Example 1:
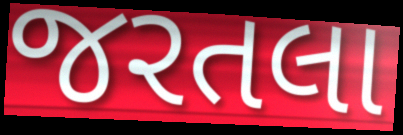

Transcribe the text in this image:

જરતલા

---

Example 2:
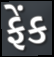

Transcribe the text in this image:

ફેંક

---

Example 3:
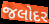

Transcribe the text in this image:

જલોદર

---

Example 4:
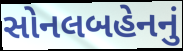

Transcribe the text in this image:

સોનલબહેનનું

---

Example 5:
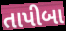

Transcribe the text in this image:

તાપીબા